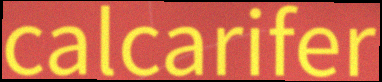
calcarifer